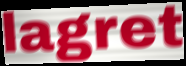
lagret